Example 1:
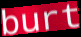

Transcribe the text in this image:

burt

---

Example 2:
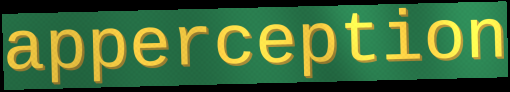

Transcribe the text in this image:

apperception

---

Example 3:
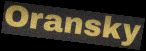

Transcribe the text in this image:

Oransky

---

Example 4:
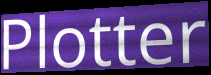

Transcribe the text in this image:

Plotter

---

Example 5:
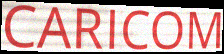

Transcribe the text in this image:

CARICOM